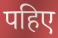
पहिए